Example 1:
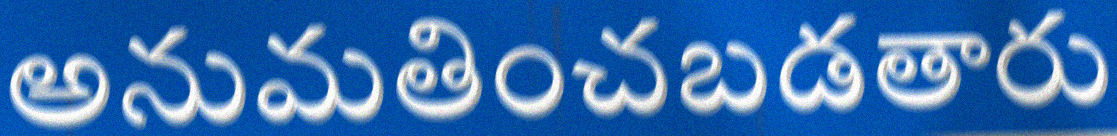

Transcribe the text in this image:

అనుమతించబడతారు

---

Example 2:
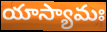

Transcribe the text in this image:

యాస్యామః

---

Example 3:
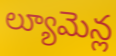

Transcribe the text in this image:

ల్యూమెన్ల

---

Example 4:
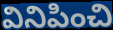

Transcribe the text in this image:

వినిపించి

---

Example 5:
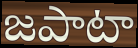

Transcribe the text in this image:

జపాటా